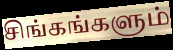
சிங்கங்களும்